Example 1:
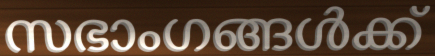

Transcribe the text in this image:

സഭാംഗങ്ങൾക്ക്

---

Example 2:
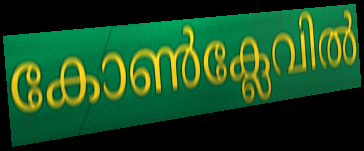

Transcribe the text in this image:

കോൺക്ലേവിൽ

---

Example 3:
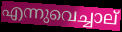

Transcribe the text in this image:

എന്നുവെച്ചാല്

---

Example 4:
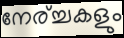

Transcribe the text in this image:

നേര്ച്ചകളും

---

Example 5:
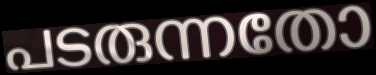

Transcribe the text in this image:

പടരുന്നതോ